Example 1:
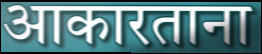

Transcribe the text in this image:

आकारताना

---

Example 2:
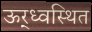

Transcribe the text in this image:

ऊर्ध्वस्थित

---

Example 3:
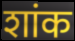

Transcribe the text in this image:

शांक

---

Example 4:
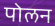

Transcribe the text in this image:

पोलन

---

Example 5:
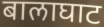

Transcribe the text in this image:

बालाघाट